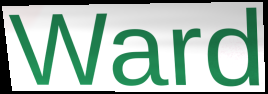
Ward